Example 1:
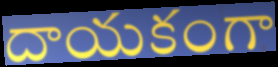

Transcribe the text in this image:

దాయకంగా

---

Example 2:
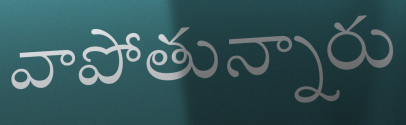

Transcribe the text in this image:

వాపోతున్నారు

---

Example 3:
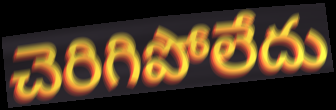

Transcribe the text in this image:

చెరిగిపోలేదు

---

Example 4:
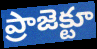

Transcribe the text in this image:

ప్రాజెక్టూ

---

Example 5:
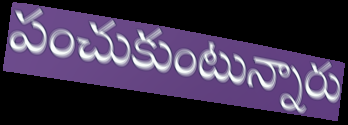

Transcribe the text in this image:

పంచుకుంటున్నారు